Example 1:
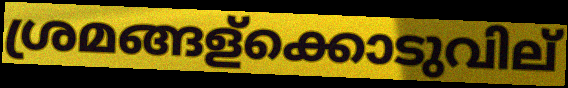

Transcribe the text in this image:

ശ്രമങ്ങള്ക്കൊടുവില്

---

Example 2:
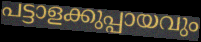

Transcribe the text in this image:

പട്ടാളക്കുപ്പായവും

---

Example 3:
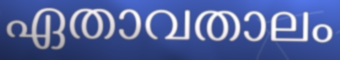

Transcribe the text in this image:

ഏതാവതാലം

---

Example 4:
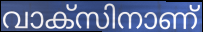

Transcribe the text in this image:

വാക്സിനാണ്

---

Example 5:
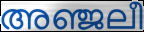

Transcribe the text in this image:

അഞ്ജലീ